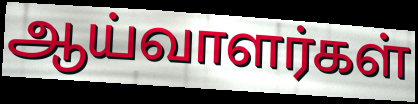
ஆய்வாளர்கள்